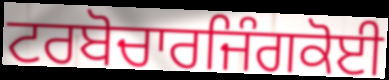
ਟਰਬੋਚਾਰਜਿੰਗਕੋਈ